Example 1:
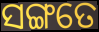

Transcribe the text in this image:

ସଙ୍ଗତେ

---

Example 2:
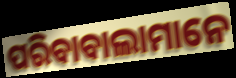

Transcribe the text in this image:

ପରିବାବାଲାମାନେ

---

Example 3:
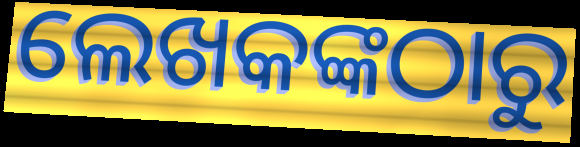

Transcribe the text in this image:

ଲେଖକଙ୍କଠାରୁ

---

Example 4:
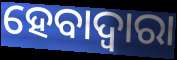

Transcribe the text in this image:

ହେବାଦ୍ୱାରା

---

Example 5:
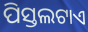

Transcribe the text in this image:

ପିସ୍ତଲଟାଏ